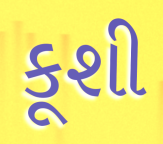
કૂશી